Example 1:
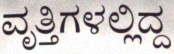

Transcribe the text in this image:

ವೃತ್ತಿಗಳಲ್ಲಿದ್ದ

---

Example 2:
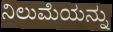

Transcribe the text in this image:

ನಿಲುಮೆಯನ್ನು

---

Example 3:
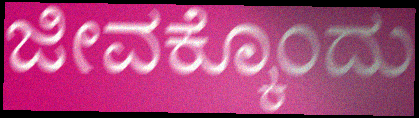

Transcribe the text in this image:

ಜೀವಕ್ಕೊಂದು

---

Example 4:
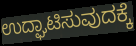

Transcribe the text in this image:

ಉದ್ಘಾಟಿಸುವುದಕ್ಕೆ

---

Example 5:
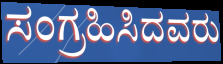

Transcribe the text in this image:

ಸಂಗ್ರಹಿಸಿದವರು